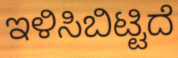
ಇಳಿಸಿಬಿಟ್ಟಿದೆ